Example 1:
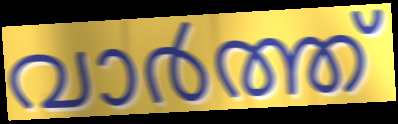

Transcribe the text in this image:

വാർത്ത്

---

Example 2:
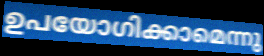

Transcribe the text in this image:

ഉപയോഗിക്കാമെന്നു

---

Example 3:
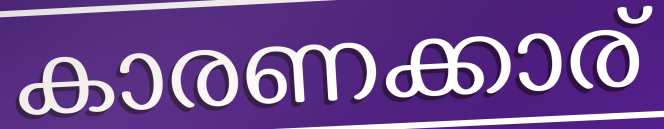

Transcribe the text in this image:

കാരണക്കാര്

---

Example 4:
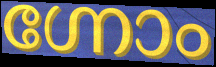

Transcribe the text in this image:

ഗ്നോം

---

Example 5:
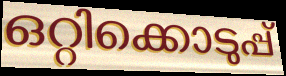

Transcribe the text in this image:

ഒറ്റിക്കൊടുപ്പ്